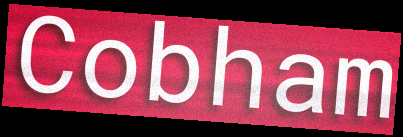
Cobham